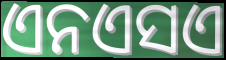
ଏନଏସଏ